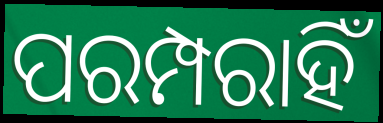
ପରମ୍ପରାହିଁ